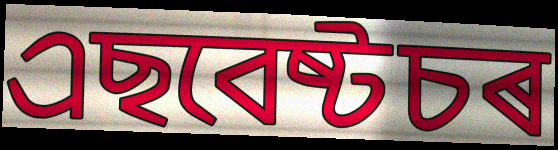
এছবেষ্টচৰ